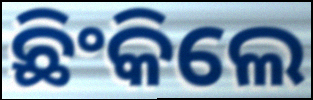
ଛିଂକିଲେ